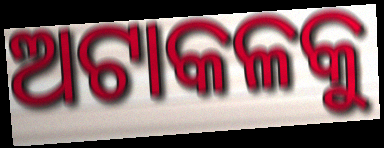
ଅଟାକଳକୁ